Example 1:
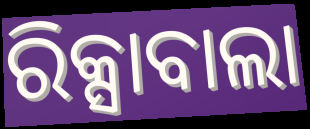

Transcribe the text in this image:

ରିକ୍ସାବାଲା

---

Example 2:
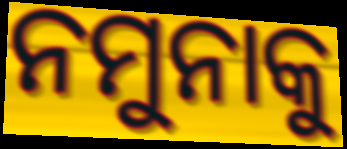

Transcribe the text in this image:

ନମୁନାକୁ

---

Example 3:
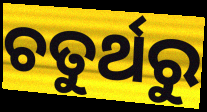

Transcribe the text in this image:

ଚତୁର୍ଥରୁ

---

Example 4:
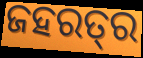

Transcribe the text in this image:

ଜହରତ୍‍ର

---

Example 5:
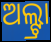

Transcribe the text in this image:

ଅଲ୍ଟ୍ରା